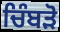
ਚਿੰਬੜੋ